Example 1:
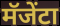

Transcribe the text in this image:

मॅजेंटा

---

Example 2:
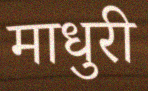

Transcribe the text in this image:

माधुरी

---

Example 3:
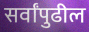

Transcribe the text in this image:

सर्वांपुढील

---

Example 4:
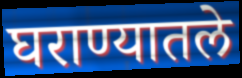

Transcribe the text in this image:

घराण्यातले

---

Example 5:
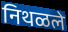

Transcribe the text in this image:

निथळले